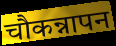
चौकन्नापन